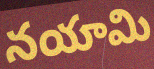
నయామి